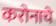
करोनाचे